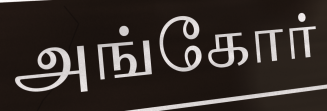
அங்கோர்